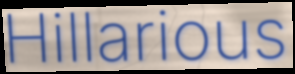
Hillarious